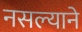
नसल्याने